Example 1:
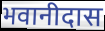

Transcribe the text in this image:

भवानीदास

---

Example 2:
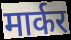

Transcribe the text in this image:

मार्कर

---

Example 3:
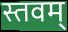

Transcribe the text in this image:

स्तवम्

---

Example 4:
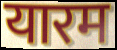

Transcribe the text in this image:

यारम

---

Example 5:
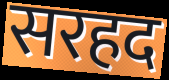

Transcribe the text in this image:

सरहद